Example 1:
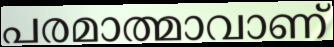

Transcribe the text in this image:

പരമാത്മാവാണ്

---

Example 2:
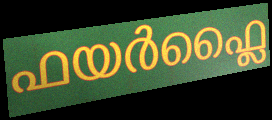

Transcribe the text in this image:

ഫയർഫ്ലൈ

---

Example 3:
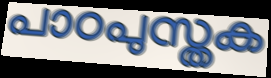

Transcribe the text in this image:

പാഠപുസ്തക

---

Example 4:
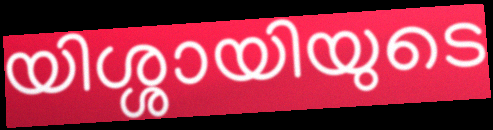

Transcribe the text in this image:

യിശ്ശായിയുടെ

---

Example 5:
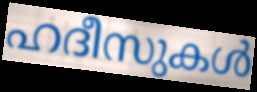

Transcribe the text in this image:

ഹദീസുകൾ